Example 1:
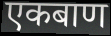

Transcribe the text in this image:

एकबाण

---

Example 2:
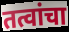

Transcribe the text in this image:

तत्वांचा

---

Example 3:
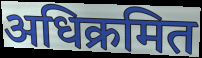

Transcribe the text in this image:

अधिक्रमित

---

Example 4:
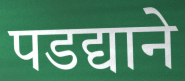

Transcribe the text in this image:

पडद्याने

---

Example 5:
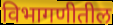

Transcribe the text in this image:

विभागणीतील